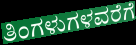
ತಿಂಗಳುಗಳವರೆಗೆ